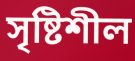
সৃষ্টিশীল